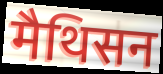
मैथिसन